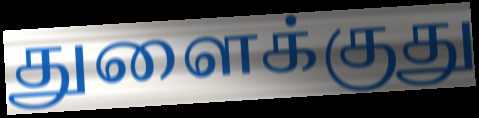
துளைக்குது